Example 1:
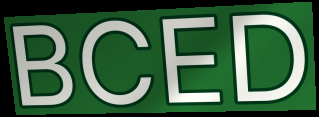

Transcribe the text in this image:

BCED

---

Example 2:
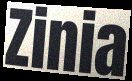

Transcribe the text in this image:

Zinia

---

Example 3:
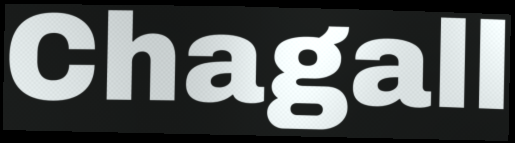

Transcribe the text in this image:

Chagall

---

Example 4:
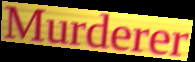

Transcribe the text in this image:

Murderer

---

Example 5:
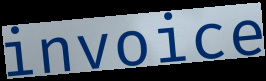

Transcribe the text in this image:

invoice